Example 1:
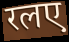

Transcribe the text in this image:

रलए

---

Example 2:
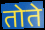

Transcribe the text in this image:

तोते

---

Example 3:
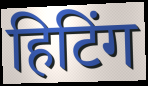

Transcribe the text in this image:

हिटिंग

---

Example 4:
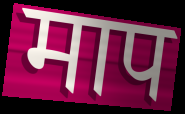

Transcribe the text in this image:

माप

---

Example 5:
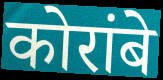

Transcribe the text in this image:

कोरांबे